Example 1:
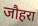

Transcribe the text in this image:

जौहरा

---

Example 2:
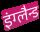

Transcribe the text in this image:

इंग्लैन्ड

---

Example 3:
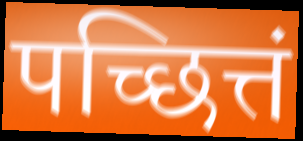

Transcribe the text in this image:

पच्छित्तं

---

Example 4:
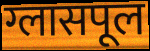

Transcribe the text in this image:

ग्लासपूल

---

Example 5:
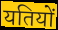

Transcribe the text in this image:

यतियों